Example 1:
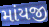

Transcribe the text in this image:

માંયજી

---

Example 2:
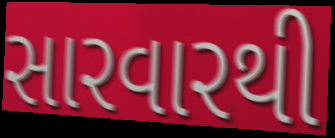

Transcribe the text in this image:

સારવારથી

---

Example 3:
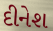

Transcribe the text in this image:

દીનેશ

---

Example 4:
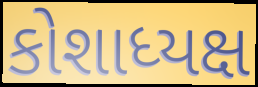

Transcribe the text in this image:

કોશાધ્યક્ષ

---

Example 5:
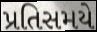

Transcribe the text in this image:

પ્રતિસમયે